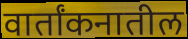
वार्तांकनातील